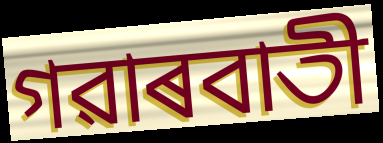
গৱাৰবাতী